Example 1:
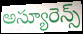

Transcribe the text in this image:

అస్యూరెన్స్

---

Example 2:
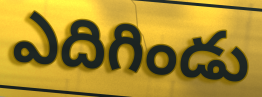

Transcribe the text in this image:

ఎదిగిండు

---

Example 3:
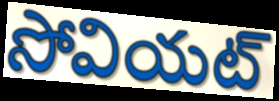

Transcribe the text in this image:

సోవియట్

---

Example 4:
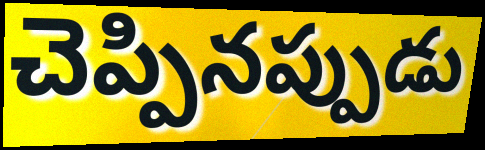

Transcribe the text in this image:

చెప్పినప్పుడు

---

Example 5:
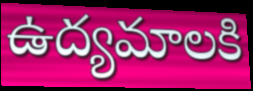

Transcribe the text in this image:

ఉద్యమాలకి